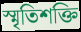
স্মৃতিশক্তি